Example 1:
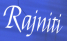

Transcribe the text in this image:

Rajniti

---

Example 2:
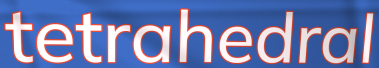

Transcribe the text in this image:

tetrahedral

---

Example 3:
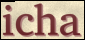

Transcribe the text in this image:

icha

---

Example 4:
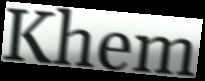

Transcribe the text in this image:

Khem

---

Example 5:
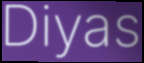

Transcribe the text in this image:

Diyas